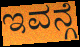
ಇವನ್ಗೆ